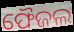
ଫୈଜଲ